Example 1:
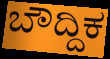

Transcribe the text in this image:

ಬೌದ್ದಿಕ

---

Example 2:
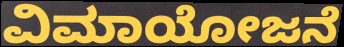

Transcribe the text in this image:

ವಿಮಾಯೋಜನೆ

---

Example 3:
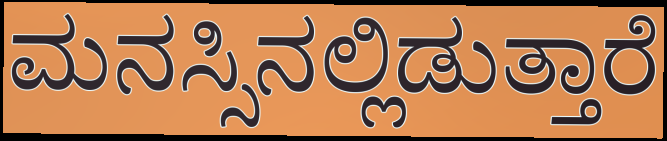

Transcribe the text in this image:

ಮನಸ್ಸಿನಲ್ಲಿಡುತ್ತಾರೆ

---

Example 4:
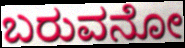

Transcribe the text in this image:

ಬರುವನೋ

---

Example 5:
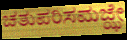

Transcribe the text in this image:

ಚತುಪರಿಸಮಜ್ಝೇ